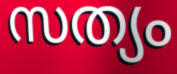
സത്യം